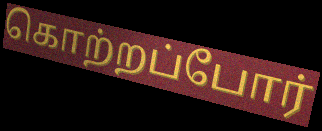
கொற்றப்போர்